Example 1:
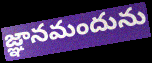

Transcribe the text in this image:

జ్ఞానమందును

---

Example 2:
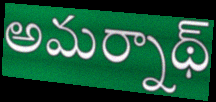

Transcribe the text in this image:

అమర్నాథ్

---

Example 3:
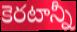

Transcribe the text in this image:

కెరటాన్నీ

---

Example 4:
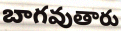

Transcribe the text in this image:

బాగవుతారు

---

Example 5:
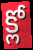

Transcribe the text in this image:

క్లో